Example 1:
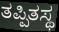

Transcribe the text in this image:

ತಪ್ಪಿತಸ್ಥ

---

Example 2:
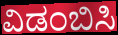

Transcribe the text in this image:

ವಿಡಂಬಿಸಿ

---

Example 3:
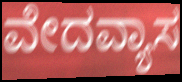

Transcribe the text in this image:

ವೇದವ್ಯಾಸ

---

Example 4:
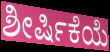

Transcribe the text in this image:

ಶೀರ್ಷಿಕೆಯೆ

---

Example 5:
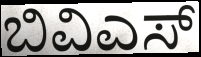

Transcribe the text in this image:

ಬಿವಿಎಸ್